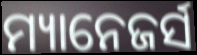
ମ୍ୟାନେଜର୍ସ